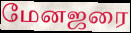
மேனஜரை